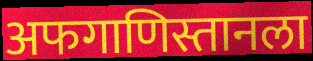
अफगाणिस्तानला